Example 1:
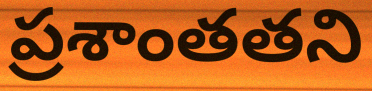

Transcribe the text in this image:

ప్రశాంతతని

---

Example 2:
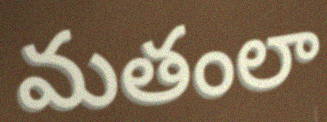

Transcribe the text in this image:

మతంలా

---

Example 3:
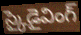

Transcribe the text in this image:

స్కైడైవింగ్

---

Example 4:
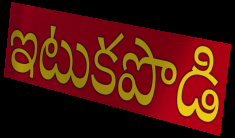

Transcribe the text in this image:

ఇటుకపొడి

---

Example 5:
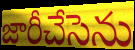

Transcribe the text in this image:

జారీచేసెను